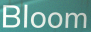
Bloom